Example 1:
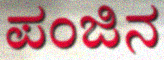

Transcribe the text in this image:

ಪಂಜಿನ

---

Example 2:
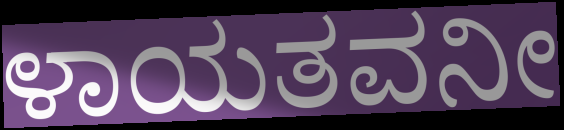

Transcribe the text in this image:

ಳಾಯತವನೀ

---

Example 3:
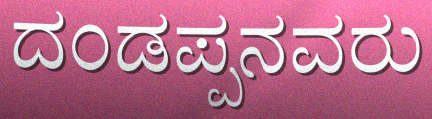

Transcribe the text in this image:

ದಂಡಪ್ಪನವರು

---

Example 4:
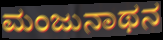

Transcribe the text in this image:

ಮಂಜುನಾಥನ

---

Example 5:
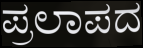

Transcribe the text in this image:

ಪ್ರಲಾಪದ